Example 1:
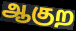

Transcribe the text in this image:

ஆகுற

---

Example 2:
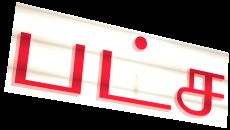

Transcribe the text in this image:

பட்ச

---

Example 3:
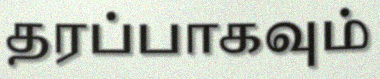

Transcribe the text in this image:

தரப்பாகவும்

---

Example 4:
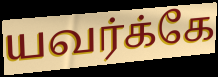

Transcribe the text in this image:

யவர்க்கே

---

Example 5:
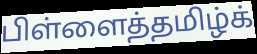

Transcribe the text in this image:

பிள்ளைத்தமிழ்க்